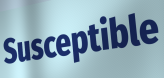
Susceptible